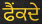
ਫੈਂਕਦੇ